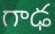
గాఢ